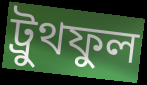
ট্রুথফুল